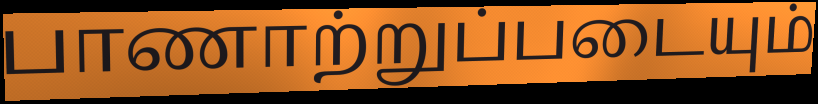
பாணாற்றுப்படையும்